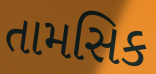
તામસિક